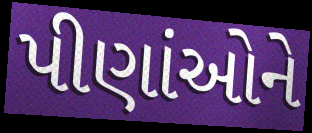
પીણાંઓને